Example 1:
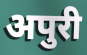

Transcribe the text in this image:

अपुरी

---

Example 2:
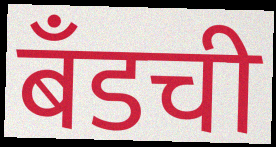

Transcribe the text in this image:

बँडची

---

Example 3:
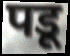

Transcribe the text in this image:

पडू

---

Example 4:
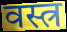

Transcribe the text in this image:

वस्त्र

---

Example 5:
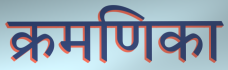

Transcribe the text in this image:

क्रमणिका